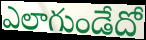
ఎలాగుండేదో